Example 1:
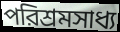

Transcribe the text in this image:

পরিশ্রমসাধ্য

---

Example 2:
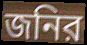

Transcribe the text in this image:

জনির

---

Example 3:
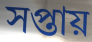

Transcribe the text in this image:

সপ্তায়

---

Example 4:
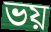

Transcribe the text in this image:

ভয়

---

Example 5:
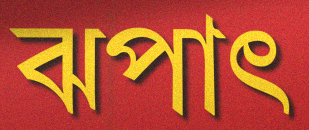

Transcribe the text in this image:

ঝপাৎ